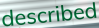
described